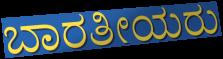
ಬಾರತೀಯರು